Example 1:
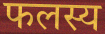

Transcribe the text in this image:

फलस्य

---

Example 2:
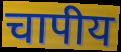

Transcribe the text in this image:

चापीय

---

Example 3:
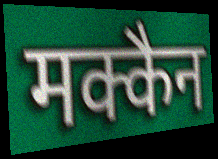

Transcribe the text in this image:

मक्कैन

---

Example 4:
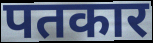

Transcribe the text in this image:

पतकार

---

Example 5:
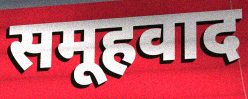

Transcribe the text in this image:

समूहवाद